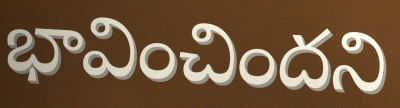
భావించిందని